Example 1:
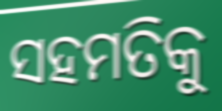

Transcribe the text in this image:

ସହମତିକୁ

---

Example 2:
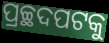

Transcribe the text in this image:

ପ୍ରଚ୍ଛଦପଟକୁ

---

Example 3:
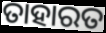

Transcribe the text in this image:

ତାହାରତ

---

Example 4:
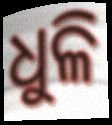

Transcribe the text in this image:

ଧୁଳି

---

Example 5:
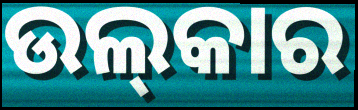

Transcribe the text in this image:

ଉଲ୍‍କାର